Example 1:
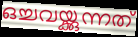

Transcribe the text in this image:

ഒച്ചവയ്ക്കുന്നത്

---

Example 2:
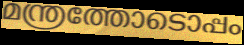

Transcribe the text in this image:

മന്ത്രത്തോടൊപ്പം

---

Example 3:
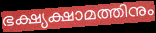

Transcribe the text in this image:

ഭക്ഷ്യക്ഷാമത്തിനും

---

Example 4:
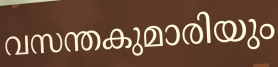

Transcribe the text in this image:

വസന്തകുമാരിയും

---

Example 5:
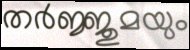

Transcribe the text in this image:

തർജ്ജുമയും